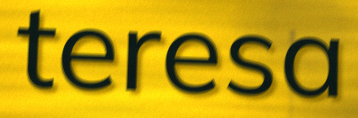
teresa